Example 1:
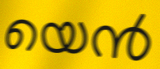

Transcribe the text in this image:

യെൻ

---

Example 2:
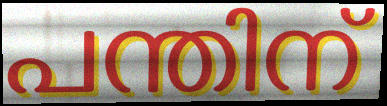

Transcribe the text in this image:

പന്തിന്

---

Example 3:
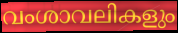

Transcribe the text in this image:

വംശാവലികളും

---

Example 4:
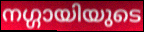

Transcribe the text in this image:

നഗ്ഗായിയുടെ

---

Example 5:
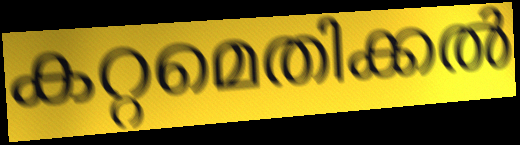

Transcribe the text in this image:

കറ്റമെതിക്കൽ